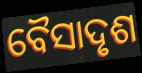
ବୈସାଦୃଶ